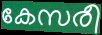
കേസരീ